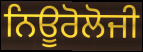
ਨਿਊਰੋਲੋਜੀ